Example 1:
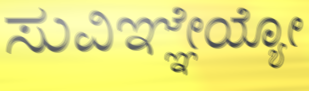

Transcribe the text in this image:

ಸುವಿಞ್ಞೇಯ್ಯೋ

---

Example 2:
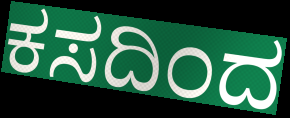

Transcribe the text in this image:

ಕಸದಿಂದ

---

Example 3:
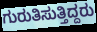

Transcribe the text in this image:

ಗುರುತಿಸುತ್ತಿದ್ದರು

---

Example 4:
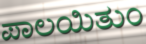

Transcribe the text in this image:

ಪಾಲಯಿತುಂ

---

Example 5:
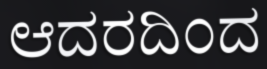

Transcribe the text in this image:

ಆದರದಿಂದ